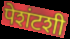
पेशंटशी